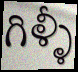
గిళ్ళీ